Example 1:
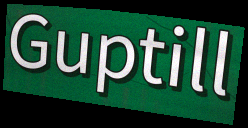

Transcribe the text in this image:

Guptill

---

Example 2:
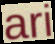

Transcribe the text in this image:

ari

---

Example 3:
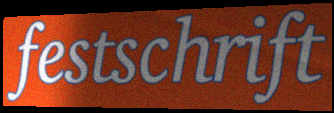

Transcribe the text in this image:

festschrift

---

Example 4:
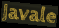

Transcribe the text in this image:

Javale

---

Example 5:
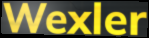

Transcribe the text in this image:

Wexler